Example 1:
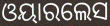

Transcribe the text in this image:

ଓୟାରଲେସ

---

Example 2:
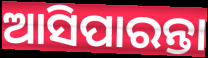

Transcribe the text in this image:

ଆସିପାରନ୍ତା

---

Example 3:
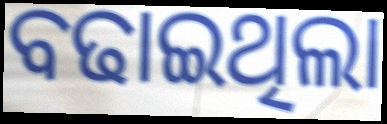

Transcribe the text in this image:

ବଢାଇଥିଲା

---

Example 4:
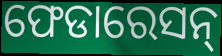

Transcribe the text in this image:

ଫେଡାରେସନ୍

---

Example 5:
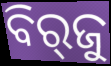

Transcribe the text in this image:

ବିର୍‌ଜୁ